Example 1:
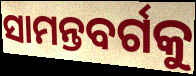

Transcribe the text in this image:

ସାମନ୍ତବର୍ଗକୁ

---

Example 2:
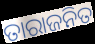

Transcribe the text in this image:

ତାରାଜନିତ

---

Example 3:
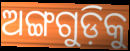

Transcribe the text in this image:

ଅଙ୍ଗଗୁଡ଼ିକୁ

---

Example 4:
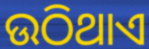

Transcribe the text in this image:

ଉଠିଥାଏ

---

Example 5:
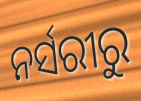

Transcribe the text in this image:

ନର୍ସରୀରୁ